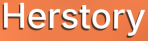
Herstory